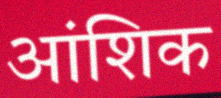
आंशिक